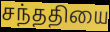
சந்ததியை